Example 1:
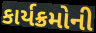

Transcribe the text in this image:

કાર્યક્રમોની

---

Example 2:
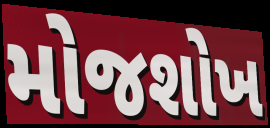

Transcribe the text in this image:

મોજશોખ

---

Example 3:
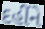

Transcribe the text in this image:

દહીંને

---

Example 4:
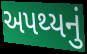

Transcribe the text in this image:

અપથ્યનું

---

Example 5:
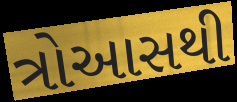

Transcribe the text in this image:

ત્રોઆસથી